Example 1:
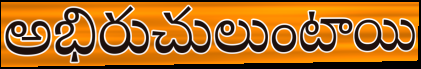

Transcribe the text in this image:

అభిరుచులుంటాయి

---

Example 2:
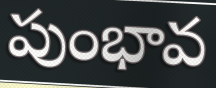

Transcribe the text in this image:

పుంభావ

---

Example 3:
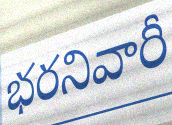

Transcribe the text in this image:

భరనివారీ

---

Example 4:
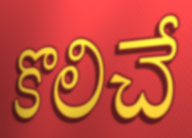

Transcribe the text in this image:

కొలిచే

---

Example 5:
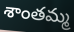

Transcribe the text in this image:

శాంతమ్మ